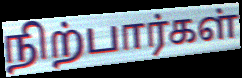
நிற்பார்கள்